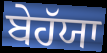
ਬੇਹੱਯਾ